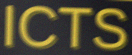
ICTS